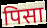
पिसा